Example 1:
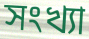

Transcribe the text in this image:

সংখ্যা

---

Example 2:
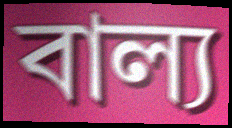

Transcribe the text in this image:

বাল্য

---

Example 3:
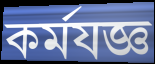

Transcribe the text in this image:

কর্মযজ্ঞ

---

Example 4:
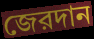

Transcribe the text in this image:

জেরদান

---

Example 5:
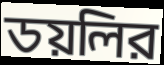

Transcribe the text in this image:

ডয়লির